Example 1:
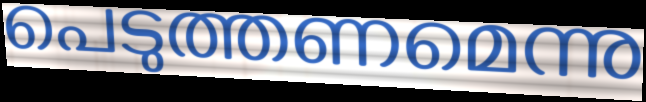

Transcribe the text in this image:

പെടുത്തണമെന്നു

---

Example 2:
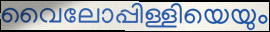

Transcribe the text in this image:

വൈലോപ്പിള്ളിയെയും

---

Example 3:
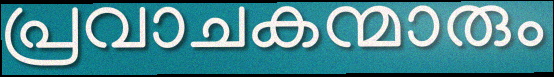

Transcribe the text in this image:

പ്രവാചകന്മാരും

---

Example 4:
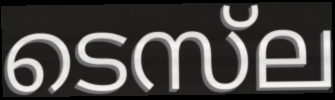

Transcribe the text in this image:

ടെസ്‌ല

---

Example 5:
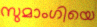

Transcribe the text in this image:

സുമാംഗിയെ